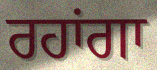
ਰਹਾਂਗਾ